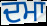
ਦਮਾ